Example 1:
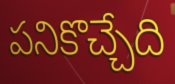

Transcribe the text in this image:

పనికొచ్చేది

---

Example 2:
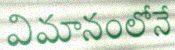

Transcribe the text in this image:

విమానంలోనే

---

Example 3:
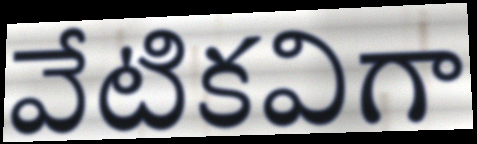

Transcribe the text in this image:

వేటికవిగా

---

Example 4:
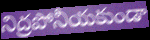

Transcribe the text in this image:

నిద్రపోనీయకుండా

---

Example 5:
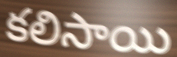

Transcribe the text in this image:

కలిసాయి